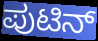
ಪುಟಿನ್